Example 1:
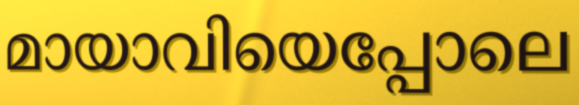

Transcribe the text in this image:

മായാവിയെപ്പോലെ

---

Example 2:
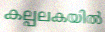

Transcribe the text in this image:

കല്പലകയിൽ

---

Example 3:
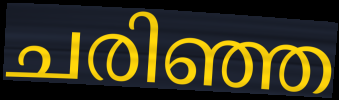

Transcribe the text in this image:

ചരിഞ്ഞ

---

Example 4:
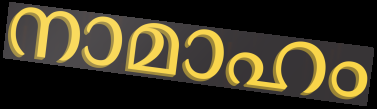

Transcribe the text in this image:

നാമാഹം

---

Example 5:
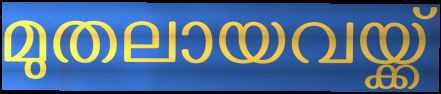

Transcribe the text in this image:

മുതലായവയ്ക്ക്